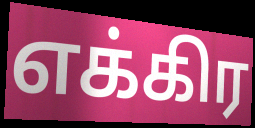
எக்கிர